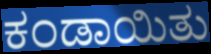
ಕಂಡಾಯಿತು